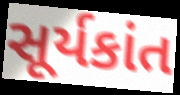
સૂર્યકાંત